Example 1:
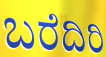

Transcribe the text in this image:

ಬರೆದಿರಿ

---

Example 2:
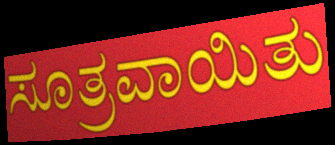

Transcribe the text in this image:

ಸೂತ್ರವಾಯಿತು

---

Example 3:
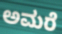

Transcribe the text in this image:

ಅಮರೆ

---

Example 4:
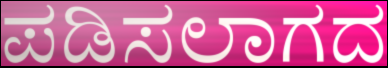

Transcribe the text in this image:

ಪಡಿಸಲಾಗದ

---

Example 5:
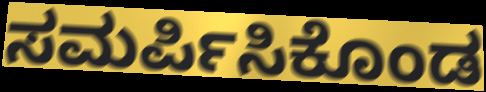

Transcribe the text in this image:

ಸಮರ್ಪಿಸಿಕೊಂಡ